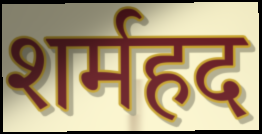
शर्महद